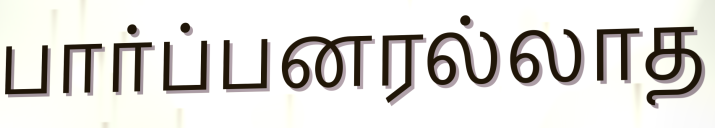
பார்ப்பனரல்லாத